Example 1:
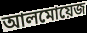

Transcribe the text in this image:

আলমোয়েজ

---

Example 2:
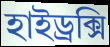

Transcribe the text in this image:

হাইড্রক্সি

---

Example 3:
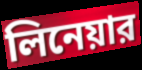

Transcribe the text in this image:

লিনেয়ার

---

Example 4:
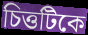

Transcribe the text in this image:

চিত্তটিকে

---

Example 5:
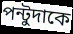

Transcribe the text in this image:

পন্টুদাকে